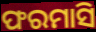
ଫରମାସି